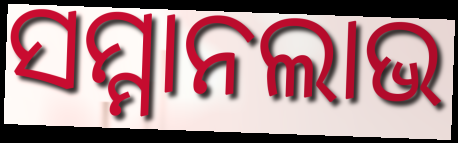
ସମ୍ମାନଲାଭ